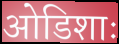
ओडिशाः